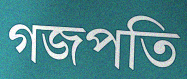
গজপতি